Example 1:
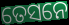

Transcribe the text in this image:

ତେସନେ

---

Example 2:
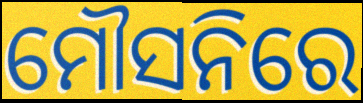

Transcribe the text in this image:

ମୌସନିରେ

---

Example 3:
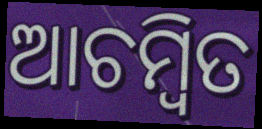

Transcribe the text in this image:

ଆଚମ୍ବିତ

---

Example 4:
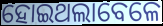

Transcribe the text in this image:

ହୋଇଥଲାବେଳେ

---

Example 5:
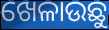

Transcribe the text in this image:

ଖେଳାଉଛୁ